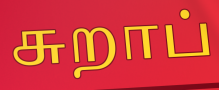
சுறாப்